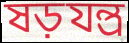
ষড়যন্ত্র